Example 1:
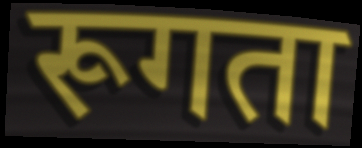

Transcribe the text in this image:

रूगता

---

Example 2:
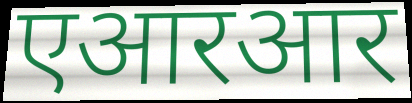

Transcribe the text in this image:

एआरआर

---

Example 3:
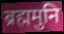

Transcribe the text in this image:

ब्रह्ममुनि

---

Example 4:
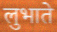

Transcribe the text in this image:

लुभाते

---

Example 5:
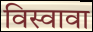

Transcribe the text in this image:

विस्वावा